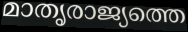
മാതൃരാജ്യത്തെ